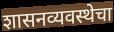
शासनव्यवस्थेचा